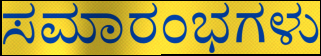
ಸಮಾರಂಭಗಳು